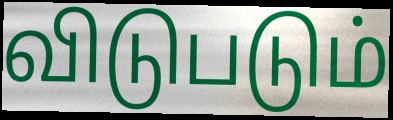
விடுபடும்